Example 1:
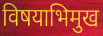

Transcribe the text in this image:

विषयाभिमुख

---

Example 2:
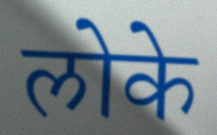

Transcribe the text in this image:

लोके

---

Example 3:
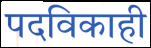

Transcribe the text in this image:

पदविकाही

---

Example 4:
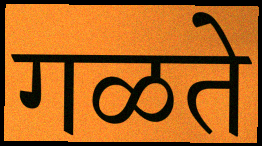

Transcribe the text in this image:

गळते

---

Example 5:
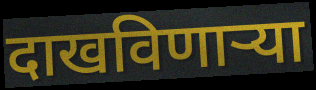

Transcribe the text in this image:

दाखविणाऱ्या